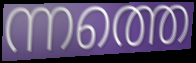
ന്നത്തെ